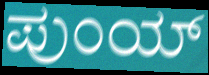
ಪುಂಯ್